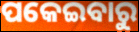
ପକେଇବାରୁ